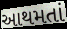
આથમતાં